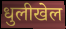
धुलीखेल